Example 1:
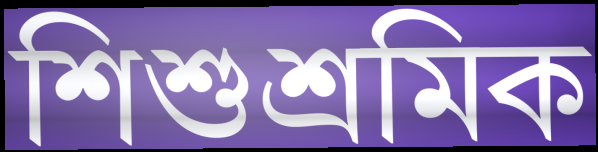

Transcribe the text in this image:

শিশুশ্রমিক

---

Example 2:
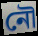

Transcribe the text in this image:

নৌ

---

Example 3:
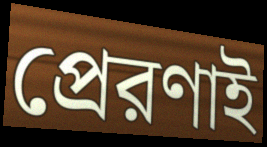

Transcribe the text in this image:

প্রেরণাই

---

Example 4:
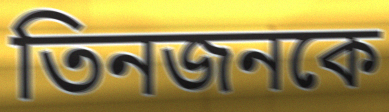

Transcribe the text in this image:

তিনজনকে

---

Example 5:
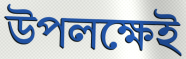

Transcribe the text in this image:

উপলক্ষেই